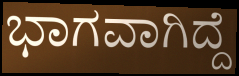
ಭಾಗವಾಗಿದ್ದೆ